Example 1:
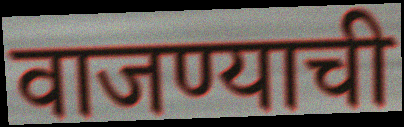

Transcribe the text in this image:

वाजण्याची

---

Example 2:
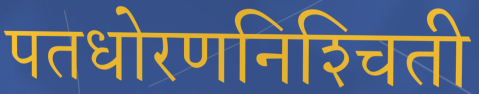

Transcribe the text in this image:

पतधोरणनिश्चिती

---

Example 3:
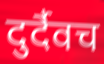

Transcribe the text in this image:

दुर्दैवच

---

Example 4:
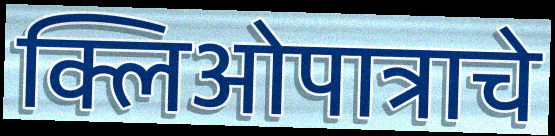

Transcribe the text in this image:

क्लिओपात्राचे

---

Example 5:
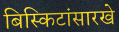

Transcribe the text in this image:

बिस्किटांसारखे